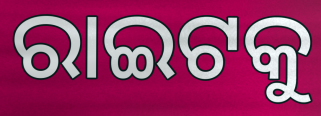
ରାଇଟକୁ